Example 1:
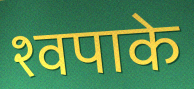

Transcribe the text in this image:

श्वपाके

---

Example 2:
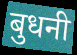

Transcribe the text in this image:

बुधनी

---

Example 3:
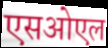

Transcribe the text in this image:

एसओएल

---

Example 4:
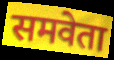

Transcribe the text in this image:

समवेता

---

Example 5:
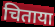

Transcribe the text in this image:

चिताया